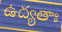
ఉద్యతాః